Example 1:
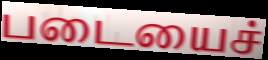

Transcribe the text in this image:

படையைச்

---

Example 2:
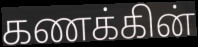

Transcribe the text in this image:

கணக்கின்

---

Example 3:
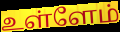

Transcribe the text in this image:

உள்ளேம்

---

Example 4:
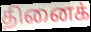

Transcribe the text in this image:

தினைக்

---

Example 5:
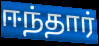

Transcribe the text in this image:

ஈந்தார்